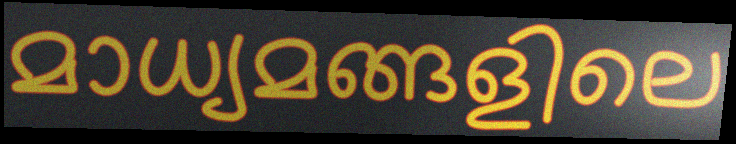
മാധ്യമങ്ങളിലെ